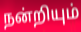
நன்றியும்